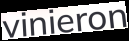
vinieron